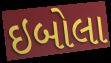
ઇબોલા